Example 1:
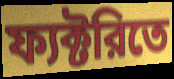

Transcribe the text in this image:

ফ্যক্টরিতে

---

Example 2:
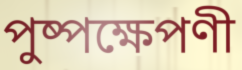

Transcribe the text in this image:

পুষ্পক্ষেপণী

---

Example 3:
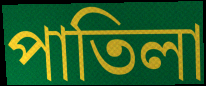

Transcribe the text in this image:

পাতিলা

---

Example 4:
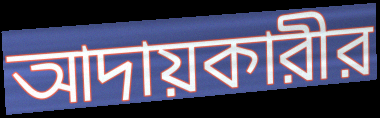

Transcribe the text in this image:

আদায়কারীর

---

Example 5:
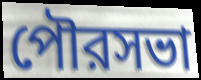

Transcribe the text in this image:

পৌরসভা